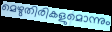
മെഴുതിരികളുമൊന്നും